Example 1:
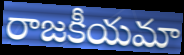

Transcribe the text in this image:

రాజకీయమా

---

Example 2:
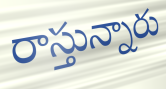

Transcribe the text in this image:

రాస్తున్నారు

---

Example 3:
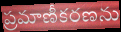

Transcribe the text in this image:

ప్రమాణీకరణను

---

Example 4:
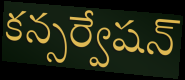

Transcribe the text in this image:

కన్సర్వేషన్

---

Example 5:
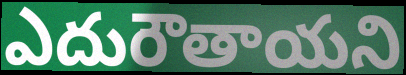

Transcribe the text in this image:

ఎదురౌతాయని